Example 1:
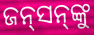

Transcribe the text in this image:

ଜନ୍‍ସନ୍‍ଙ୍କୁ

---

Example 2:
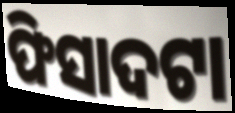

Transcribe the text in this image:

ଫିସାଦଟା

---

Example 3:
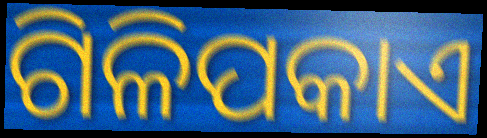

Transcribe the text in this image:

ଗିଳିପକାଏ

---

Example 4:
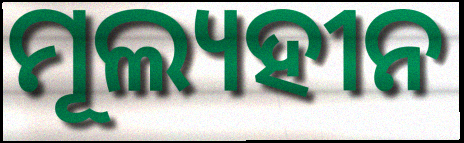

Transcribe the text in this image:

ମୂଲ୍ୟହୀନ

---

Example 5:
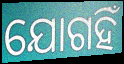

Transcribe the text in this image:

ଯୋଗହିଁ